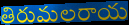
తిరుమలరాయ